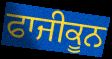
ਫਾਜੀਕੂਨ